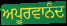
ਅਪੂਰਵਾਨੰਦ